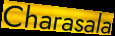
Charasala